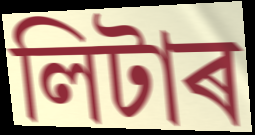
লিটাৰ